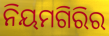
ନିୟମଗିରିର